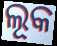
ଲୂକ